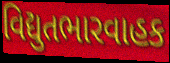
વિદ્યુતભારવાહક